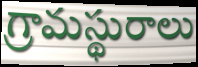
గ్రామస్థురాలు